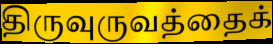
திருவுருவத்தைக்